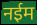
नईम